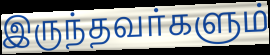
இருந்தவர்களும்